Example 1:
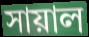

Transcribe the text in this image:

সায়াল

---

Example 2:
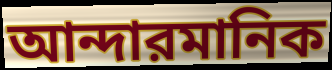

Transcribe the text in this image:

আন্দারমানিক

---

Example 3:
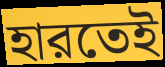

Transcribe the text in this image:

হারতেই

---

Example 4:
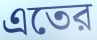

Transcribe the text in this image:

এতের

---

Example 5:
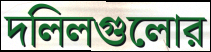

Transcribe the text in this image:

দলিলগুলোর